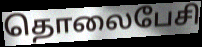
தொலைபேசி